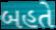
બહતે